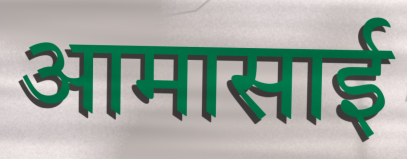
आमासाई